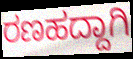
ರಣಹದ್ದಾಗಿ